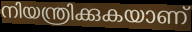
നിയന്ത്രിക്കുകയാണ്